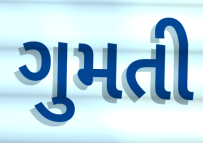
ગુમતી